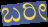
ಬರೀ